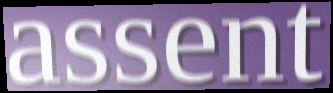
assent